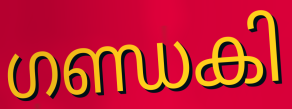
ഗണ്ഡകി